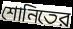
শোনিতের